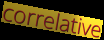
correlative